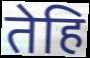
तेहि